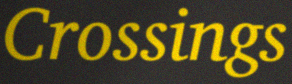
Crossings